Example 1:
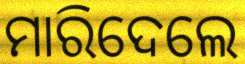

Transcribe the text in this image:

ମାରିଦେଲେ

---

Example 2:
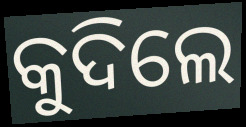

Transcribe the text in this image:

କୁଦିଲେ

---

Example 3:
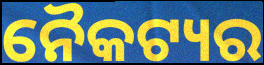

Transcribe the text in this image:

ନୈକଟ୍ୟର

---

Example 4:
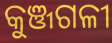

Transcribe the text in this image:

କୁଞ୍ଜଗଳୀ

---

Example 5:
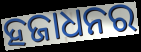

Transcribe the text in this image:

ହଜାଧନର